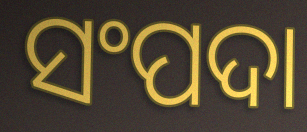
ସଂପଦା